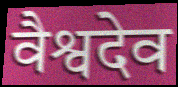
वैश्वदेव